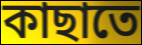
কাছাতে